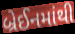
બ્રેઈનમાંથી